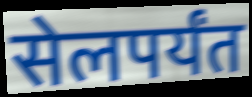
सेलपर्यंत